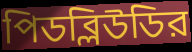
পিডব্লিউডির